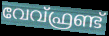
വേവ്ഫ്രണ്ട്